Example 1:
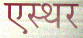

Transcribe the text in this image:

एस्थर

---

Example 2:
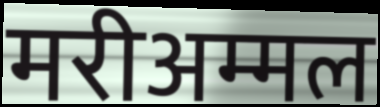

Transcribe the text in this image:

मरीअम्मल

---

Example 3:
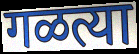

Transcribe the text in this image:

गळत्या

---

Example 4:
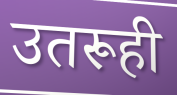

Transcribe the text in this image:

उतरूही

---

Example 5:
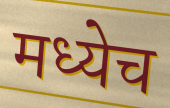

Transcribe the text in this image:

मध्येच